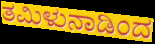
ತಮಿಳುನಾಡಿಂದ